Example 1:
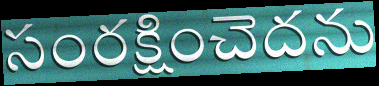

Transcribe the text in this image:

సంరక్షించెదను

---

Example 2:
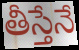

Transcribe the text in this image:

తీస్తేనే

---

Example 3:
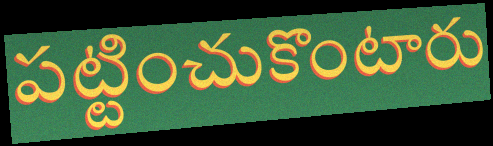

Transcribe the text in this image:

పట్టించుకొంటారు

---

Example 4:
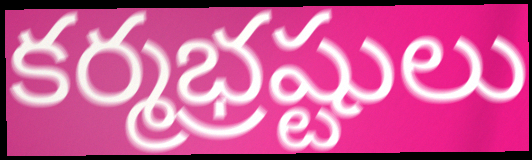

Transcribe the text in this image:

కర్మభ్రష్టులు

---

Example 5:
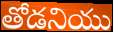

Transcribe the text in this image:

తోడనియు